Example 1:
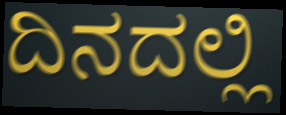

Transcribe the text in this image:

ದಿನದಲ್ಲಿ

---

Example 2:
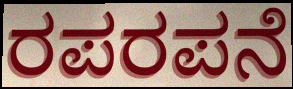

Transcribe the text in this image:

ರಪರಪನೆ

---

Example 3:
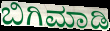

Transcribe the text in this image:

ಬಿಗಿಮಾಡಿ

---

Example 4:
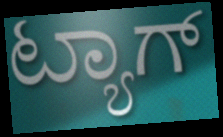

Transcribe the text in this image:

ಟ್ಯಾಗ್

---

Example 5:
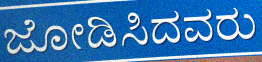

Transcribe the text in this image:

ಜೋಡಿಸಿದವರು